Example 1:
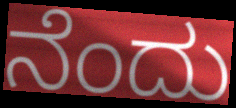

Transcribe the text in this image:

ನೆಂದು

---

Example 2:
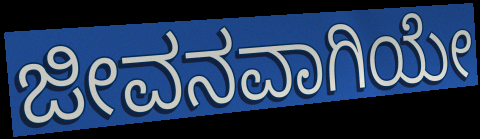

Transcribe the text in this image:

ಜೀವನವಾಗಿಯೇ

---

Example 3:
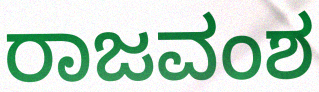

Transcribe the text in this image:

ರಾಜವಂಶ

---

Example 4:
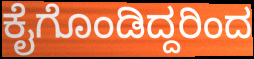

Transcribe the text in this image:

ಕೈಗೊಂಡಿದ್ದರಿಂದ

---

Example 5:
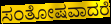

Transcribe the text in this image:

ಸಂತೋಷವಾದರೆ